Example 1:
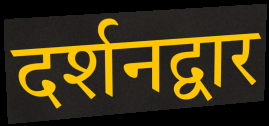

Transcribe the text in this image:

दर्शनद्वार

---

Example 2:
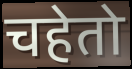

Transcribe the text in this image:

चहेतो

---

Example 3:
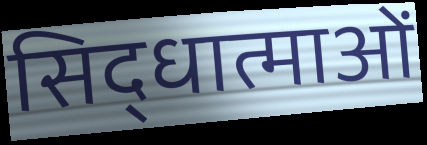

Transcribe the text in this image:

सिद्धात्माओं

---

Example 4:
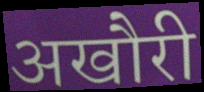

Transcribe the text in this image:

अखौरी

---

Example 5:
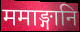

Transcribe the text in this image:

ममाङ्गानि